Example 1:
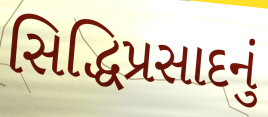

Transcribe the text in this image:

સિદ્ધિપ્રસાદનું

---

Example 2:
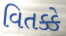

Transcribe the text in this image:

વિતક્કે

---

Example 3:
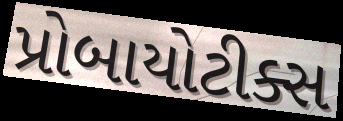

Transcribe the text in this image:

પ્રોબાયોટીક્સ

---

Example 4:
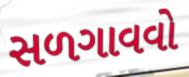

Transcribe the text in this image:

સળગાવવો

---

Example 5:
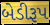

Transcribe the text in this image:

બેડીરૂપ